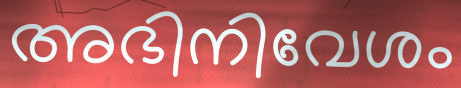
അഭിനിവേശം